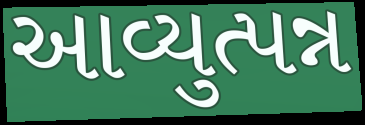
આવ્યુત્પન્ન